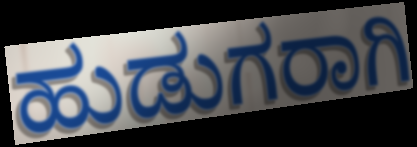
ಹುಡುಗರಾಗಿ